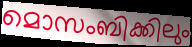
മൊസംബിക്കിലും